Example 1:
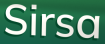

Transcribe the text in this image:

Sirsa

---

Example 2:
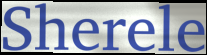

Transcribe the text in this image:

Sherele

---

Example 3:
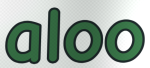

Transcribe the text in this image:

aloo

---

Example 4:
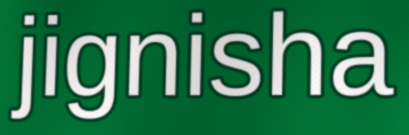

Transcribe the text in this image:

jignisha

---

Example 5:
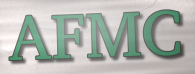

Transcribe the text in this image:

AFMC